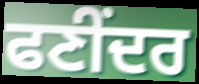
ਫਣੀਂਦਰ